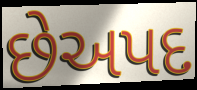
છેઅપદ